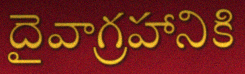
దైవాగ్రహానికి